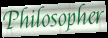
Philosopher